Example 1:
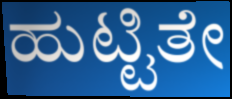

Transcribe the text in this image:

ಹುಟ್ಟಿತೇ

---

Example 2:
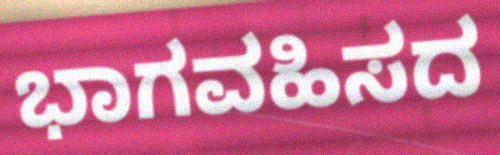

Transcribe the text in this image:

ಭಾಗವಹಿಸದ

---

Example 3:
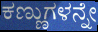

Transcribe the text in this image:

ಕಣ್ಣುಗಳನ್ನೇ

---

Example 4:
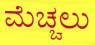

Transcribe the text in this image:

ಮೆಚ್ಚಲು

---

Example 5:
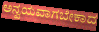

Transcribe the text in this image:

ಅನ್ವಯವಾಗಬೇಕಾದ